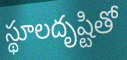
స్థూలదృష్టితో